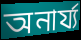
অনার্য্য